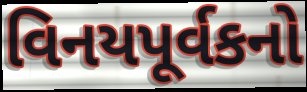
વિનયપૂર્વકનો